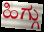
ಹಿಗ್ಗು